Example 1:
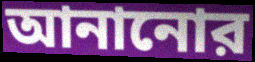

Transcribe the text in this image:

আনানোর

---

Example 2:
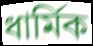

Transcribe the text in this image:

ধার্মিক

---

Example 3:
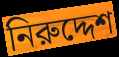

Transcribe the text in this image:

নিরুদ্দেশ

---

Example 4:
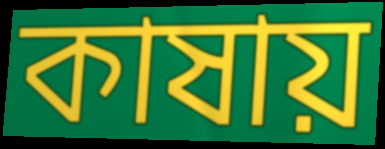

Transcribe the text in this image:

কাষায়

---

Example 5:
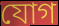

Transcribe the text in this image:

যোগ